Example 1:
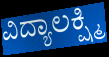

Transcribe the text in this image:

ವಿದ್ಯಾಲಕ್ಷ್ಮಿ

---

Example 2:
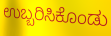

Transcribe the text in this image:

ಉಬ್ಬರಿಸಿಕೊಂಡು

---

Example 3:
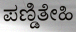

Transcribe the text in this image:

ಪಣ್ಡಿತೇಹಿ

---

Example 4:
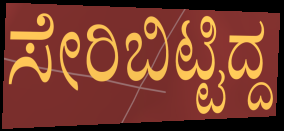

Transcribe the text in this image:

ಸೇರಿಬಿಟ್ಟಿದ್ದ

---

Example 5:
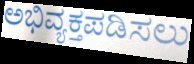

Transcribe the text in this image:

ಅಭಿವ್ಯಕ್ತಪಡಿಸಲು